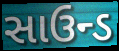
સાઉન્ડ